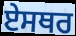
ਏਸਥਰ